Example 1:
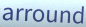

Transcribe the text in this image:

arround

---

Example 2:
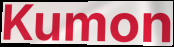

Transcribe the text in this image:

Kumon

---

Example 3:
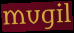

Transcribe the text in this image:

mugil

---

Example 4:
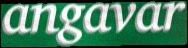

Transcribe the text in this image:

angavar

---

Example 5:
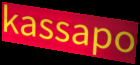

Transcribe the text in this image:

kassapo